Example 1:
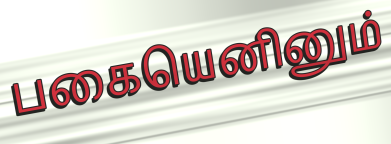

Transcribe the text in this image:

பகையெனினும்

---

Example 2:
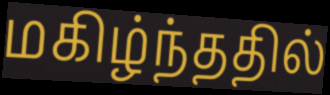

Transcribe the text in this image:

மகிழ்ந்ததில்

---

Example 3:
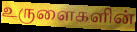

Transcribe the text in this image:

உருளைகளின்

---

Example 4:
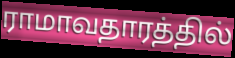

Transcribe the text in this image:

ராமாவதாரத்தில்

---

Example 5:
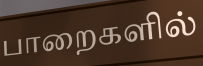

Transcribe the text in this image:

பாறைகளில்